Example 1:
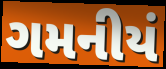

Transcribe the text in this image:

ગમનીયં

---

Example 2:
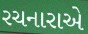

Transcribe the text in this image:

રચનારાએ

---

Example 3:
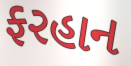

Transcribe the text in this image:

ફરહાન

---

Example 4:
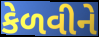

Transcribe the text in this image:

કેળવીને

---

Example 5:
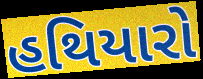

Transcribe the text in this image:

હથિયારો